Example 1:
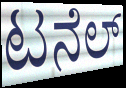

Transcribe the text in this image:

ಟನೆಲ್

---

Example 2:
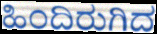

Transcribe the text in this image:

ಹಿಂದಿರುಗಿದ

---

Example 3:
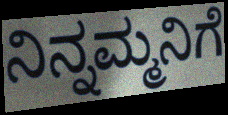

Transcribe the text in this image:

ನಿನ್ನಮ್ಮನಿಗೆ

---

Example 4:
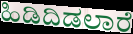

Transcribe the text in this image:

ಹಿಡಿದಿಡಲಾರೆ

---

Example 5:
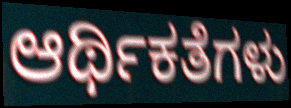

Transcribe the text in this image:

ಆರ್ಥಿಕತೆಗಳು